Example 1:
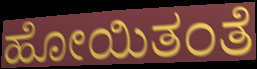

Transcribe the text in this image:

ಹೋಯಿತಂತೆ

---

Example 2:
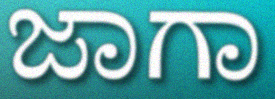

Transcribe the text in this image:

ಜಾಗಾ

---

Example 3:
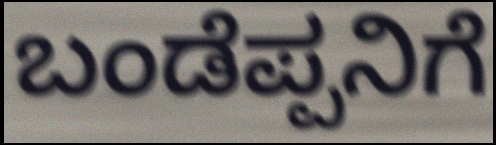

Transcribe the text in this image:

ಬಂಡೆಪ್ಪನಿಗೆ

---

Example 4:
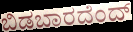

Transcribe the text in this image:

ಬಿಡಬಾರದೆಂದ್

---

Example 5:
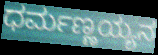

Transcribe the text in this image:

ಧರ್ಮಣ್ಣಯ್ಯನ